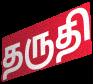
தருதி